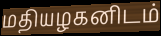
மதியழகனிடம்